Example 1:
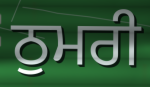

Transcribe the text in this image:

ਠੁਮਰੀ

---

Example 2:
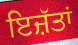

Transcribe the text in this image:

ਇਜ਼ੱਤਾਂ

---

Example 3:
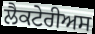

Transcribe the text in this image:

ਲੈਕਟੇਰੀਅਸ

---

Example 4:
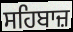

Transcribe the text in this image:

ਸਹਿਬਾਜ਼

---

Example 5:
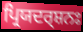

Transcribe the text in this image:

ਪ੍ਰਿਯਦਰ੍ਸ਼ਨਃ